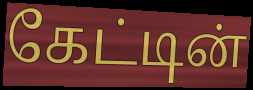
கேட்டின்